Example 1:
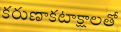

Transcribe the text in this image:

కరుణాకటాక్షాలతో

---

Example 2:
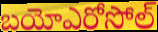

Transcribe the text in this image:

బయోఎరోసోల్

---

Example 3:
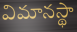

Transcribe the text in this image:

విమానస్థా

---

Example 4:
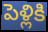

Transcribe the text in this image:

పెళ్లికి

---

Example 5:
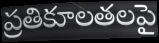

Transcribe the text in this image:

ప్రతికూలతలపై